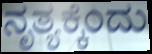
ನೃತ್ಯಕ್ಕೆಂದು